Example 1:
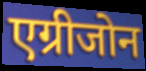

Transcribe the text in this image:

एग्रीजोन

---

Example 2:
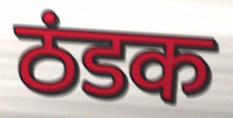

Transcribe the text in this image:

ठंडक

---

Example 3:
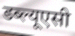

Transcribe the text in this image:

डब्ल्यूएसी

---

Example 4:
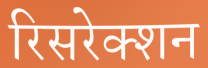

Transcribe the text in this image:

रिसरेक्शन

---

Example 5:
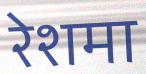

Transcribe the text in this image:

रेशमा